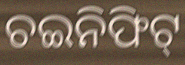
ଚଇନିଫିଟ୍